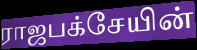
ராஜபக்சேயின்